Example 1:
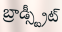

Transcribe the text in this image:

బ్రాడ్స్ట్రీట్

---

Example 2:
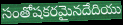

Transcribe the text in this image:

సంతోషకరమైనదేదియు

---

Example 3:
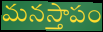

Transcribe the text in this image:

మనస్తాపం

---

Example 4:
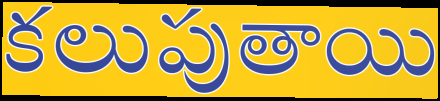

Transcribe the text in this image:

కలుపుతాయి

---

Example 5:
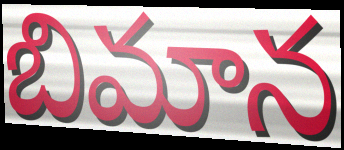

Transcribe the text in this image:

బిమాన